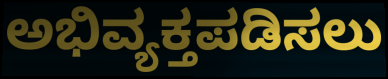
ಅಭಿವ್ಯಕ್ತಪಡಿಸಲು